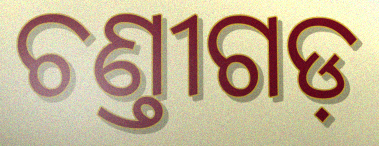
ଚଣ୍ତୀଗଡ଼